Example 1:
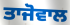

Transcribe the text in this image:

ਤਾਜੋਵਾਲ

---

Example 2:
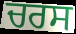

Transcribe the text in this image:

ਚਰਸ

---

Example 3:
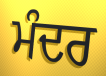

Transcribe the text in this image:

ਮੰਦਰ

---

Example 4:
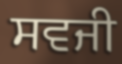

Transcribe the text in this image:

ਸਵਜੀ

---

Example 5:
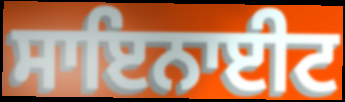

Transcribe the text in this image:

ਸਾਇਨਾਈਟ